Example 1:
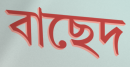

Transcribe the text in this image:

বাছেদ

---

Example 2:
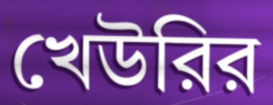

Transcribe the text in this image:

খেউরির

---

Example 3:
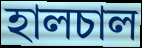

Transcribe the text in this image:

হালচাল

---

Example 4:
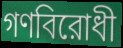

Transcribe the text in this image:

গণবিরোধী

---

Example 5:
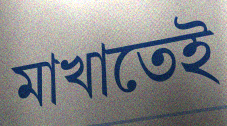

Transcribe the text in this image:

মাখাতেই